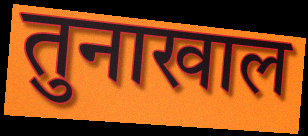
तुनाखाल